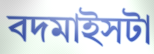
বদমাইসটা